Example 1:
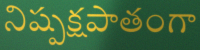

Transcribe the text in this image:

నిష్పక్షపాతంగా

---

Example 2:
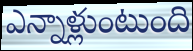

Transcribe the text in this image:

ఎన్నాళ్లుంటుంది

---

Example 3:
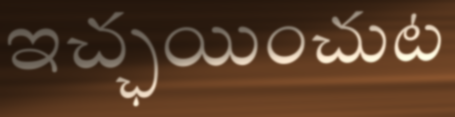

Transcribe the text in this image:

ఇచ్ఛయించుట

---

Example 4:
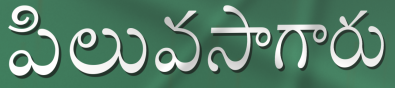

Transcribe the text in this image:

పిలువసాగారు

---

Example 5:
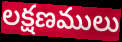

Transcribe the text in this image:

లక్షణములు